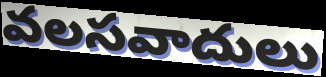
వలసవాదులు